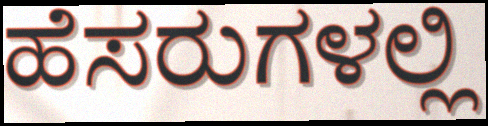
ಹೆಸರುಗಳಲ್ಲಿ